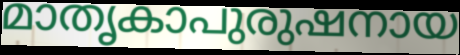
മാതൃകാപുരുഷനായ